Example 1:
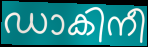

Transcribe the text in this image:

ഡാകിനീ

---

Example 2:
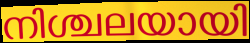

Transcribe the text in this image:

നിശ്ചലയായി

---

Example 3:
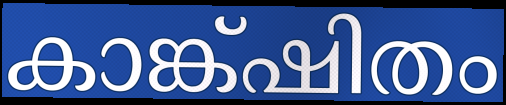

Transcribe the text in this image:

കാങ്ക്ഷിതം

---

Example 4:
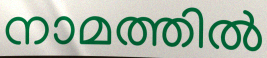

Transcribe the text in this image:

നാമത്തിൽ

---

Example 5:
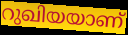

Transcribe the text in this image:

റുഖിയയാണ്